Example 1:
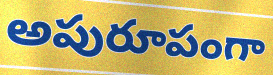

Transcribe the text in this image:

అపురూపంగా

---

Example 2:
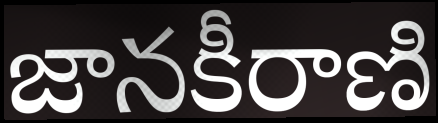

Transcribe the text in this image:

జానకీరాణి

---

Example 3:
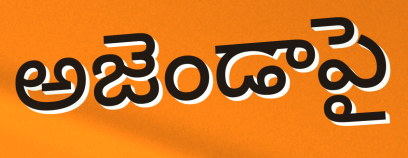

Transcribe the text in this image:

అజెండాపై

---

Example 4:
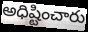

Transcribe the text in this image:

అధిష్టించారు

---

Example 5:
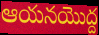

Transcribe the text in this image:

ఆయనయొద్ద